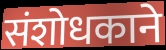
संशोधकाने